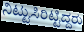
ನಿಟ್ಟುಸಿರಿಟ್ಟಿದ್ದರು